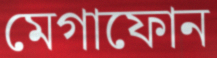
মেগাফোন